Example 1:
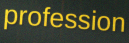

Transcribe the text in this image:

profession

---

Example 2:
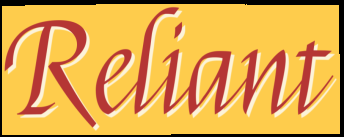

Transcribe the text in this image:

Reliant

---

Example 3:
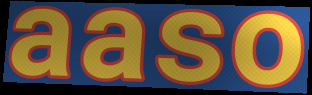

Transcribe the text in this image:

aaso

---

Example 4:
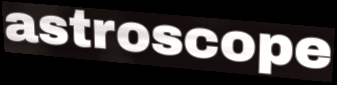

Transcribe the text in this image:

astroscope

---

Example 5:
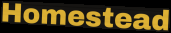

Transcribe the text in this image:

Homestead